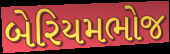
બેરિયમભોજ